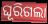
ଘୂରିଗଲା